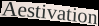
Aestivation